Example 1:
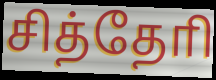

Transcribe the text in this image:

சித்தேரி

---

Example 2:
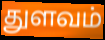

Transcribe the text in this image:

துளவம்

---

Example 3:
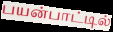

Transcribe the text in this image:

பயன்பாட்டில்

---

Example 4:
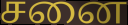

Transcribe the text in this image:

சனை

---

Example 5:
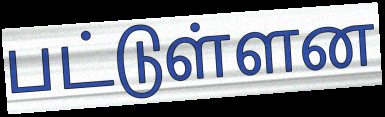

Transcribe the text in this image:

பட்டுள்ளன